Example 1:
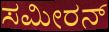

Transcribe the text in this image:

ಸಮೀರನ್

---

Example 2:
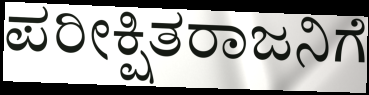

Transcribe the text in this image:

ಪರೀಕ್ಷಿತರಾಜನಿಗೆ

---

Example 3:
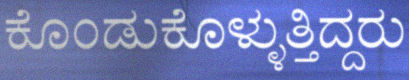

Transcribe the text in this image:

ಕೊಂಡುಕೊಳ್ಳುತ್ತಿದ್ದರು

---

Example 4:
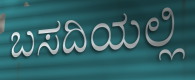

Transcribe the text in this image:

ಬಸದಿಯಲ್ಲಿ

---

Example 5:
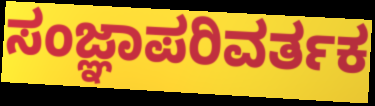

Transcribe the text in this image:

ಸಂಜ್ಞಾಪರಿವರ್ತಕ